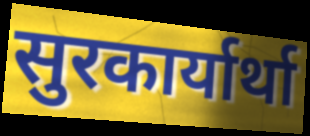
सुरकार्यार्था